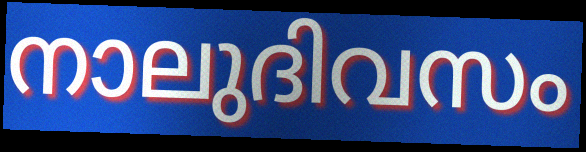
നാലുദിവസം